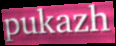
pukazh